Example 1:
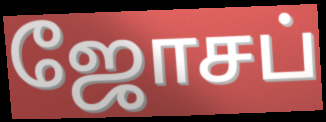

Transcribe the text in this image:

ஜோசப்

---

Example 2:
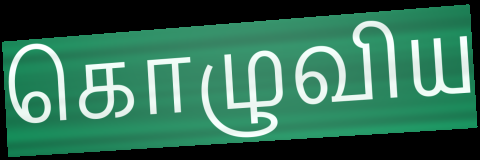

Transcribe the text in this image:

கொழுவிய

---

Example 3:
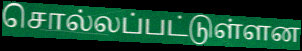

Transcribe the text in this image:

சொல்லப்பட்டுள்ளன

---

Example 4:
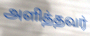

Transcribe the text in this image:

அளித்தவர்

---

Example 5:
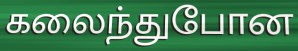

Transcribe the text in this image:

கலைந்துபோன